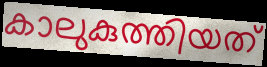
കാലുകുത്തിയത്